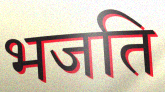
भजति